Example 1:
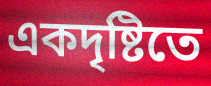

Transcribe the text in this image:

একদৃষ্টিতে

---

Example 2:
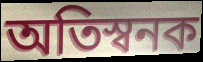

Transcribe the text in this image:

অতিস্বনক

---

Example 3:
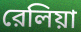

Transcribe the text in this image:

রেলিয়া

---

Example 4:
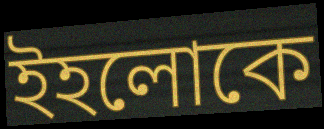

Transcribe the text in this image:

ইহলোকে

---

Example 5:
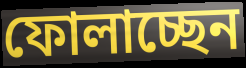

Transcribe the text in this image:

ফোলাচ্ছেন